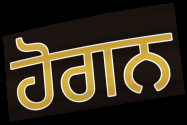
ਹੋਗਨ